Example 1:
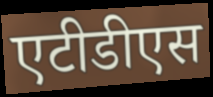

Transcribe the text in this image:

एटीडीएस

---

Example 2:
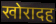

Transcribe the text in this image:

खोरादह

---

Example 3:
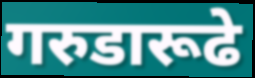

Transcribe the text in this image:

गरुडारूढे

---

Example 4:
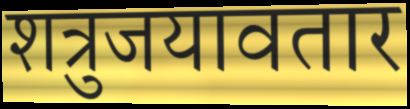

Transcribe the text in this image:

शत्रुजयावतार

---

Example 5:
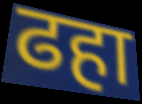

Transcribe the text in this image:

ढहा